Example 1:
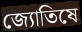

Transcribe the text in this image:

জ্যোতিষে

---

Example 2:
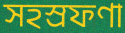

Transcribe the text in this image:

সহস্রফণা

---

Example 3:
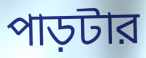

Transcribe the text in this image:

পাড়টার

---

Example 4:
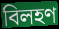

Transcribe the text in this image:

বিলহণ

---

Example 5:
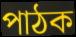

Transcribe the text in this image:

পাঠক